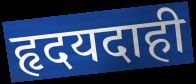
हृदयदाही